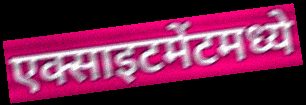
एक्साइटमेंटमध्ये